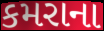
કમરાના